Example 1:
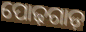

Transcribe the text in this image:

ପୋଢ଼ଗାଡ଼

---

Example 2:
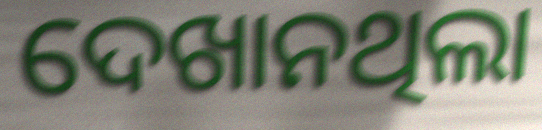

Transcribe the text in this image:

ଦେଖାନଥିଲା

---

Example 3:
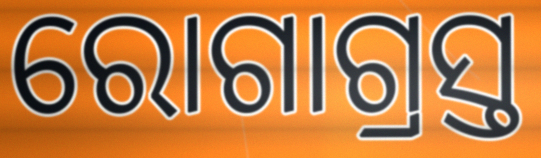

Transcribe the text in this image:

ରୋଗାଗ୍ରସ୍ତ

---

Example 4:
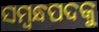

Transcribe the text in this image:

ସମ୍ବନ୍ଧପଦକୁ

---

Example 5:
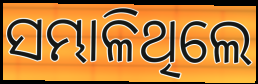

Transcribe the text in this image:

ସମ୍ଭାଳିଥିଲେ